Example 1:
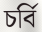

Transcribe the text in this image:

চর্বি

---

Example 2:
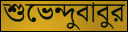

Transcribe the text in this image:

শুভেন্দুবাবুর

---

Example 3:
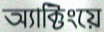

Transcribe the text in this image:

অ্যাক্টিংয়ে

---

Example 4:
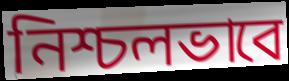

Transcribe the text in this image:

নিশ্চলভাবে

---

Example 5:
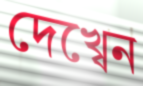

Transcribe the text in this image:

দেখ্বেন